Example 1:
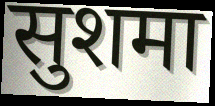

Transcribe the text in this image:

सुशमा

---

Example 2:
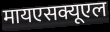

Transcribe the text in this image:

मायएसक्यूएल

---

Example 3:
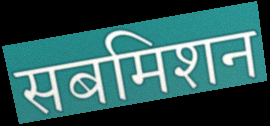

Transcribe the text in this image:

सबमिशन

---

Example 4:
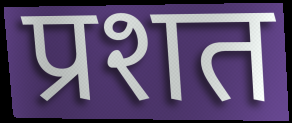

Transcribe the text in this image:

प्रशत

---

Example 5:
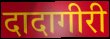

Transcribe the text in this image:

दादागीरी